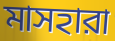
মাসহারা